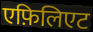
एफ़िलिएट